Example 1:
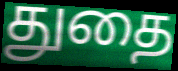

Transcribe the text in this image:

துதை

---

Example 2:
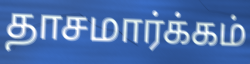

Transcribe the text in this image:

தாசமார்க்கம்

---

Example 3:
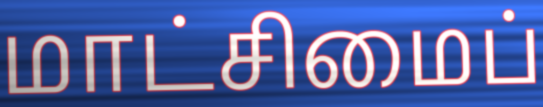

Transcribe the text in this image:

மாட்சிமைப்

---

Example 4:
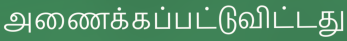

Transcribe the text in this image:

அணைக்கப்பட்டுவிட்டது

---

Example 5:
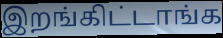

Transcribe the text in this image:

இறங்கிட்டாங்க